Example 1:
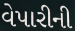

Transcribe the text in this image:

વેપારીની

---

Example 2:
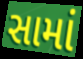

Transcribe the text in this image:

સામાં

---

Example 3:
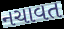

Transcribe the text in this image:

નચાવત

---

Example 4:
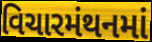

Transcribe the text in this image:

વિચારમંથનમાં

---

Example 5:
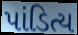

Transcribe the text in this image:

પાંડિત્ય